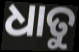
ଧାତୁ